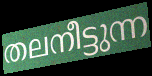
തലനീട്ടുന്ന